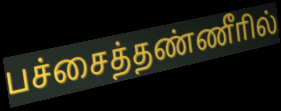
பச்சைத்தண்ணீரில்